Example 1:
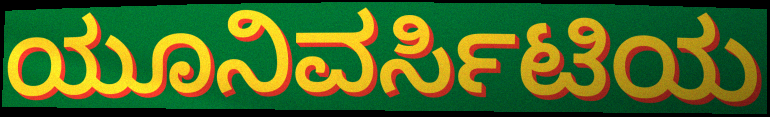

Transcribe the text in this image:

ಯೂನಿವರ್ಸಿಟಿಯ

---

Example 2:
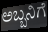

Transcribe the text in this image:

ಅಬ್ಬನಿಗೆ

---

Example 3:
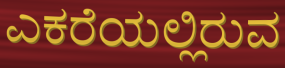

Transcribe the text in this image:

ಎಕರೆಯಲ್ಲಿರುವ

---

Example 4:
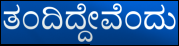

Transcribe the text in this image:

ತಂದಿದ್ದೇವೆಂದು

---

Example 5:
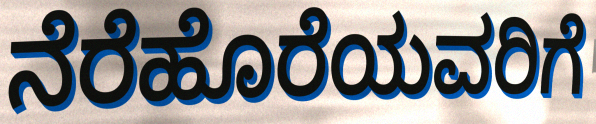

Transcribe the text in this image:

ನೆರೆಹೊರೆಯವರಿಗೆ